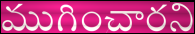
ముగించారని